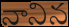
నానిన